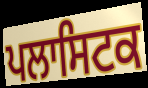
ਪਲਾਸਿਟਕ